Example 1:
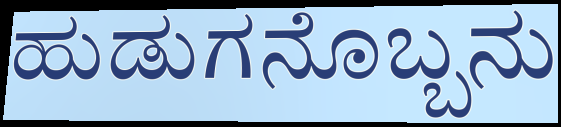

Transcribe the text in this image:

ಹುಡುಗನೊಬ್ಬನು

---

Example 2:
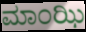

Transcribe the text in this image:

ಮಾಂಝಿ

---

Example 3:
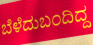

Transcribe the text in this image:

ಬೆಳೆದುಬಂದಿದ್ದ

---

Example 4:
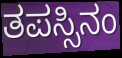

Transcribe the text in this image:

ತಪಸ್ಸಿನಂ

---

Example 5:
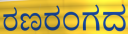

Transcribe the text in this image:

ರಣರಂಗದ